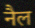
नैल